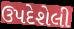
ઉપદેશેલી